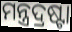
ମନ୍ତ୍ରଦ୍ରଷ୍ଟା